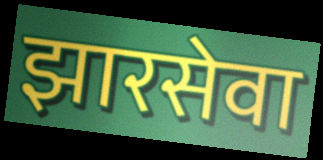
झारसेवा